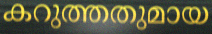
കറുത്തതുമായ